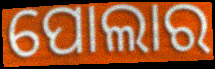
ପୋଲାର